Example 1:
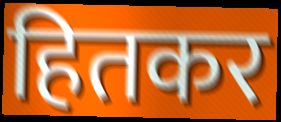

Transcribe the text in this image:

हितकर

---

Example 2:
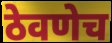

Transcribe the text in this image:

ठेवणेच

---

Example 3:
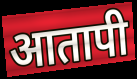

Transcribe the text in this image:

आतापी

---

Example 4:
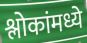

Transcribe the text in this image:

श्लोकांमध्ये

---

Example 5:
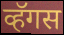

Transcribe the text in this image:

व्हॅगस